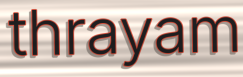
thrayam